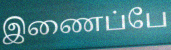
இணைப்பே